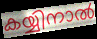
കയ്യിനാൽ